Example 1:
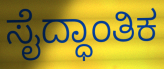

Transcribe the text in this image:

ಸೈದ್ಧಾಂತಿಕ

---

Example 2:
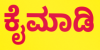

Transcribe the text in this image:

ಕೈಮಾಡಿ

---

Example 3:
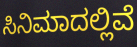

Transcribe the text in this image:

ಸಿನಿಮಾದಲ್ಲಿವೆ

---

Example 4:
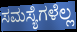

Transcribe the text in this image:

ಸಮಸ್ಯೆಗಳೆಲ್ಲ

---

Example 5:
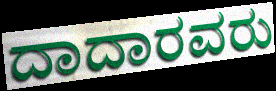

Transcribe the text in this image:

ದಾದಾರವರು